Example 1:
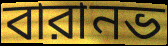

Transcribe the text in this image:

বারানভ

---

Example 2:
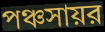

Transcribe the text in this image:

পঞ্চসায়র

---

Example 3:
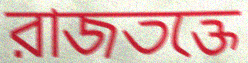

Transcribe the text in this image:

রাজতক্তে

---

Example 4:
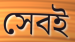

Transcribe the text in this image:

সেবই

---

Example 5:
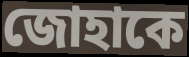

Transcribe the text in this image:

জোহাকে